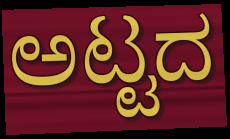
ಅಟ್ಟದ